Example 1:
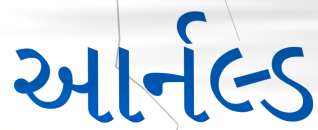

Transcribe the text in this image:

આર્નલ્ડ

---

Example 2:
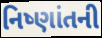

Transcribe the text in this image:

નિષ્ણાંતની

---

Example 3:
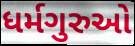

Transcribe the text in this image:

ધર્મગુરુઓ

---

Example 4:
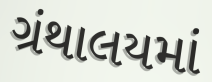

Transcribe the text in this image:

ગ્રંથાલયમાં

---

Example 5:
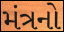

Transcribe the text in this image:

મંત્રનો